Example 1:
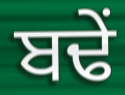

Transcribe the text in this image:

ਬਢੇਂ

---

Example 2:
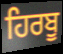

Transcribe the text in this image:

ਹਿਰਬੂ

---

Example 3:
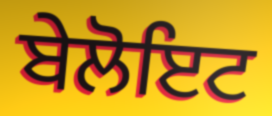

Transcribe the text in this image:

ਬੇਲੋਇਟ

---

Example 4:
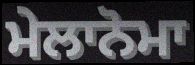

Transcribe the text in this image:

ਮੇਲਾਨੋਮਾ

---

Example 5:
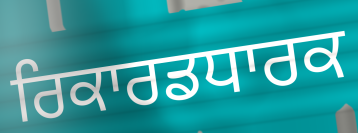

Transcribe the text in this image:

ਰਿਕਾਰਡਧਾਰਕ